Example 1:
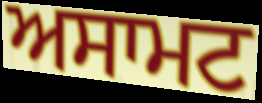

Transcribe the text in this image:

ਅਸਾਮਟ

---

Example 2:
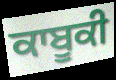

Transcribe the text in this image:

ਕਾਬੂਕੀ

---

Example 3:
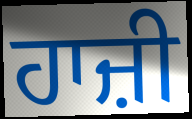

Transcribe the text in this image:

ਹਾਜ਼ੀ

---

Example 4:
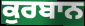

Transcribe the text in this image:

ਕੁਰਬਾਨ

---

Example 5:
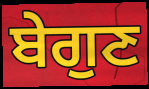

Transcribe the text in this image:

ਬੇਗੁਣ